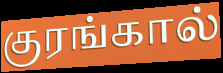
குரங்கால்